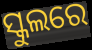
ସ୍କୁଲରେ